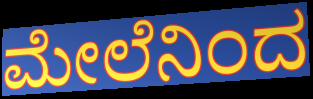
ಮೇಲೆನಿಂದ